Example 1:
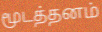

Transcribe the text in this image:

மூடத்தனம்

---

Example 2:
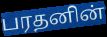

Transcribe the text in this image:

பரதனின்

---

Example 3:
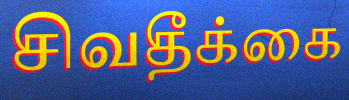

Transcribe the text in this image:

சிவதீக்கை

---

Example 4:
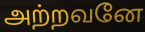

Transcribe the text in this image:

அற்றவனே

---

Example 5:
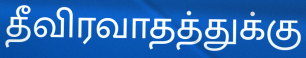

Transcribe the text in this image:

தீவிரவாதத்துக்கு